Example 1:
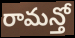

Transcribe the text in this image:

రామన్తో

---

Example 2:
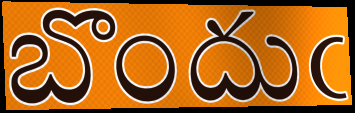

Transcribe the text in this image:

బొందుఁ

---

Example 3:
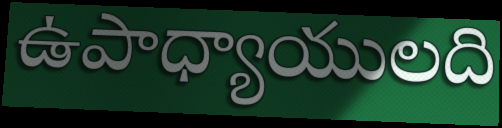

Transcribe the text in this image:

ఉపాధ్యాయులది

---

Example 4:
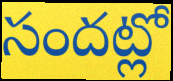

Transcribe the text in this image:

సందట్లో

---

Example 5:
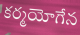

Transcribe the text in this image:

కర్మయోగేన